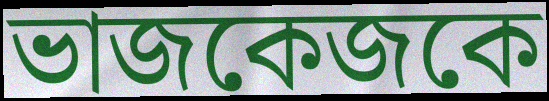
ভাজকেজকে